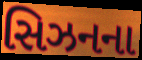
સિઝનના